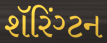
શૅરિંગ્ટન